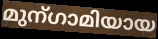
മുന്ഗാമിയായ